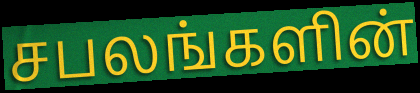
சபலங்களின்